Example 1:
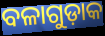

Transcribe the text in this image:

ବଳାଗୁଡ଼ାକ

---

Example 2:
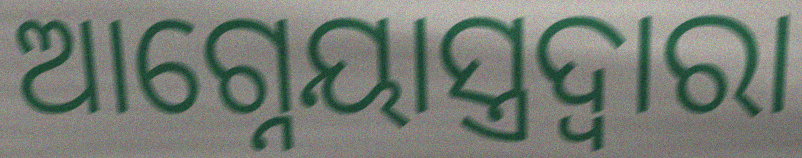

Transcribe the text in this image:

ଆଗ୍ନେୟାସ୍ତ୍ରଦ୍ୱାରା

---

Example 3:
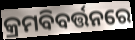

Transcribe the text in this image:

କ୍ରମବିବର୍ତ୍ତନରେ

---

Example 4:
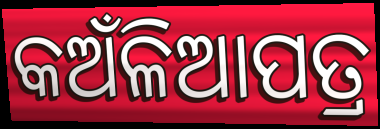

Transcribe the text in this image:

କଅଁଳିଆପତ୍ର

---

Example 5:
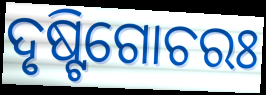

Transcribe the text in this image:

ଦୃଷ୍ଟିଗୋଚରଃ